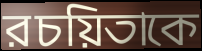
রচয়িতাকে